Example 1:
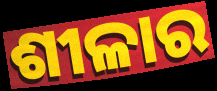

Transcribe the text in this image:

ଶୀଳାର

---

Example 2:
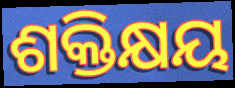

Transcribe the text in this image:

ଶକ୍ତିକ୍ଷୟ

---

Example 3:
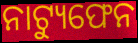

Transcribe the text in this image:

ନାଟ୍ୟୁଫେନ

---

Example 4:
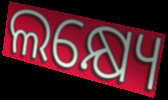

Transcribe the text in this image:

ଲକ୍ଷ୍ୟେ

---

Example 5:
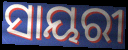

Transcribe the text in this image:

ସାୟରୀ